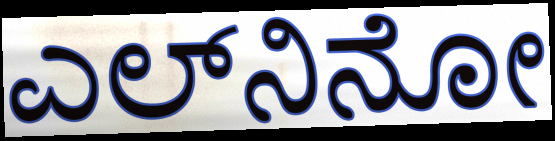
ಎಲ್‍ನಿನೋ